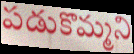
పడుకొమ్మని